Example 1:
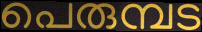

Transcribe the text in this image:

പെരുമ്പട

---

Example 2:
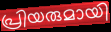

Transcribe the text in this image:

പ്രിയരുമായി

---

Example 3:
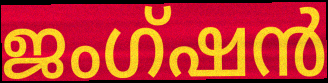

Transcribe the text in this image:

ജംഗ്ഷൻ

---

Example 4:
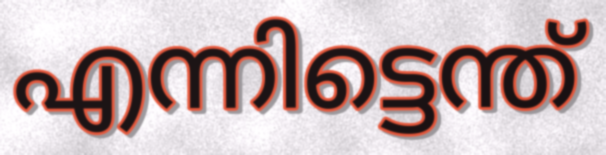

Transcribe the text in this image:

എന്നിട്ടെന്ത്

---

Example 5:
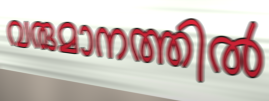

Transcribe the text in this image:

വരുമാനത്തിൽ